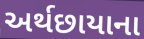
અર્થછાયાના